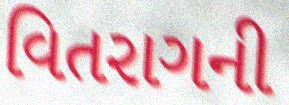
વિતરાગની